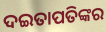
ଦଇତାପତିଙ୍କର